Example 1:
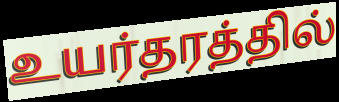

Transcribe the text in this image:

உயர்தரத்தில்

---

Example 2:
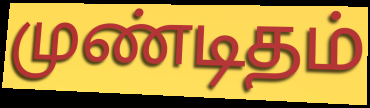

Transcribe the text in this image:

முண்டிதம்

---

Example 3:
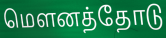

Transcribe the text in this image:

மௌனத்தோடு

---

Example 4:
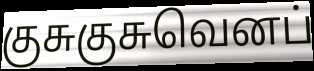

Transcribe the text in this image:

குசுகுசுவெனப்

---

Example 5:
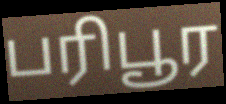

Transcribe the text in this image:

பரிபூர